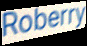
Roberry